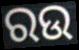
ରଉ